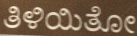
ತಿಳಿಯಿತೋ